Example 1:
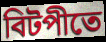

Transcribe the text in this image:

বিটপীতে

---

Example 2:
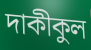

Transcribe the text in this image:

দাকীকুল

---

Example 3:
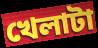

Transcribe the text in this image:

খেলাটা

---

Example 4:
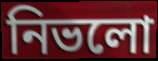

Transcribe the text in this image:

নিভলো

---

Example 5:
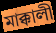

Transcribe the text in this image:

মাক্কালী